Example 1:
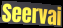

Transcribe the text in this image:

Seervai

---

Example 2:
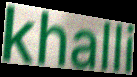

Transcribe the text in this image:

khalli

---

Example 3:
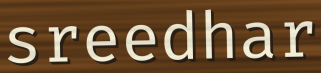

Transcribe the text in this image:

sreedhar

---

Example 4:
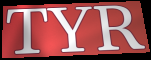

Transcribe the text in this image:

TYR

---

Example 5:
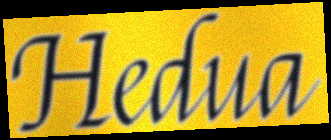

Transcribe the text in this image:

Hedua